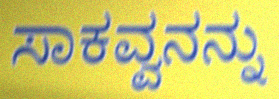
ಸಾಕವ್ವನನ್ನು